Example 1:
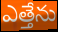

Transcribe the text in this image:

ఎత్తేను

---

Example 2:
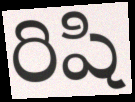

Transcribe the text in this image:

రిషి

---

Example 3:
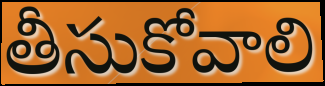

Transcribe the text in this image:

తీసుకోవాలి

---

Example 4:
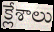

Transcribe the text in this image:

క్లేశాలు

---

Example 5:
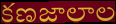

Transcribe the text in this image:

కణజాలాల